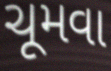
ચૂમવા